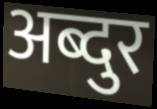
अब्दुर